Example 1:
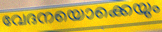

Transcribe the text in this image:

വേദനയൊക്കെയും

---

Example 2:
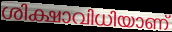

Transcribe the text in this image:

ശിക്ഷാവിധിയാണ്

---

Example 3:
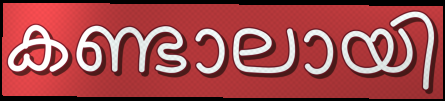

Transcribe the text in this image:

കണ്ടാലായി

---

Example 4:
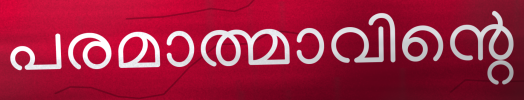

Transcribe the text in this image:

പരമാത്മാവിന്റെ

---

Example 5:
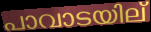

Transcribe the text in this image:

പാവാടയില്